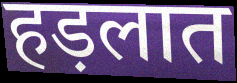
हड़लात